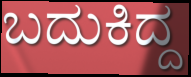
ಬದುಕಿದ್ದ